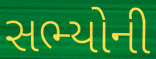
સભ્યોની